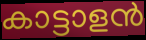
കാട്ടാളൻ